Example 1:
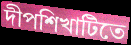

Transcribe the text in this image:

দীপশিখাটিতে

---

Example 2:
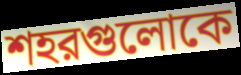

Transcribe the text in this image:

শহরগুলোকে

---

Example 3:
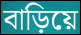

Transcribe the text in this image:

বাড়িয়ে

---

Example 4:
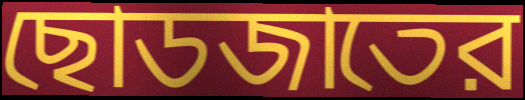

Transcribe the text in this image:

ছোডজাতের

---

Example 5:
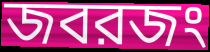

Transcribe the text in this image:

জবরজং